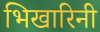
भिखारिनी